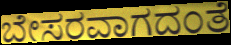
ಬೇಸರವಾಗದಂತೆ